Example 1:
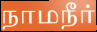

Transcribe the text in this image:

நாமநீர்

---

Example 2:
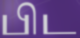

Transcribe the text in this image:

பிட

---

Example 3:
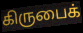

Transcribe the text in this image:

கிருபைக்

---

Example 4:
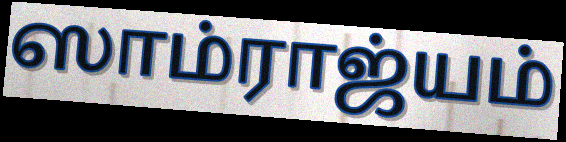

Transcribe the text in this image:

ஸாம்ராஜ்யம்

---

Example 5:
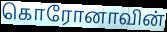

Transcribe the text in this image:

கொரோனாவின்